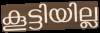
കൂട്ടിയില്ല